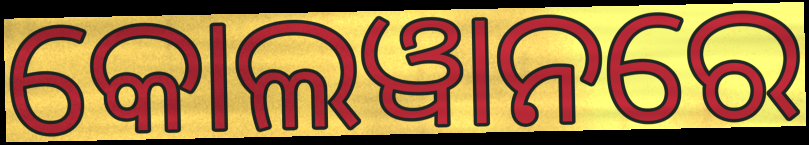
କୋଲୱାନରେ